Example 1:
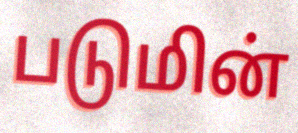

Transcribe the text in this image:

படுமின்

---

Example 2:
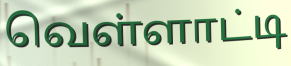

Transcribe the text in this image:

வெள்ளாட்டி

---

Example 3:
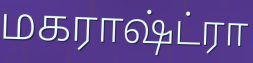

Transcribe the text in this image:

மகராஷ்ட்ரா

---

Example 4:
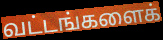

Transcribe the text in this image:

வட்டங்களைக்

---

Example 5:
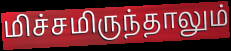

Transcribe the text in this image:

மிச்சமிருந்தாலும்